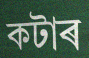
কটাৰ